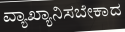
ವ್ಯಾಖ್ಯಾನಿಸಬೇಕಾದ